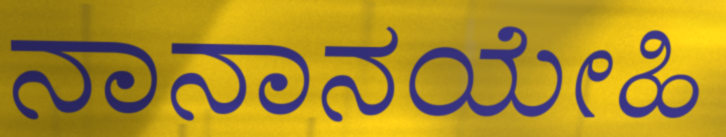
ನಾನಾನಯೇಹಿ